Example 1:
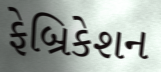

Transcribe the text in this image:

ફેબ્રિકેશન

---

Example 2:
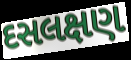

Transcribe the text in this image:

દસલક્ષણ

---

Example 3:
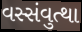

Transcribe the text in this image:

વસ્સંવુત્થા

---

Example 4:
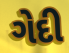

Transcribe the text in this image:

ગેદી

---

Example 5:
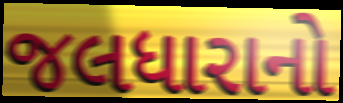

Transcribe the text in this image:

જલધારાનો